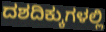
ದಶದಿಕ್ಕುಗಳಲ್ಲಿ